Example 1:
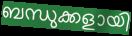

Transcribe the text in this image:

ബന്ധുക്കളായി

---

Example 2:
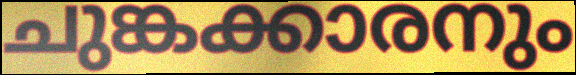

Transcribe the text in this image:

ചുങ്കക്കാരനും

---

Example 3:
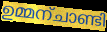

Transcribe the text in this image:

ഉമ്മന്ചാണ്ടി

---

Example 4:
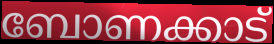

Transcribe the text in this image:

ബോണക്കാട്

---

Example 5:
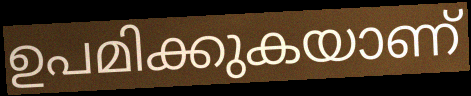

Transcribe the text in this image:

ഉപമിക്കുകയാണ്